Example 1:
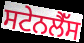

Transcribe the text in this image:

ਸਟੇਨਲੈੱਸ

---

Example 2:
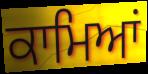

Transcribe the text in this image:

ਕਾਮਿਆਂ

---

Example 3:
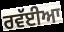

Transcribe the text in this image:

ਰਵੱਈਆ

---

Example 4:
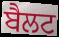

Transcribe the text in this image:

ਬੈਲਟ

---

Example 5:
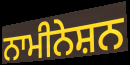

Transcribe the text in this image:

ਨਾਮੀਨੇਸ਼ਨ